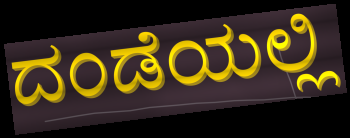
ದಂಡೆಯಲ್ಲಿ